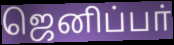
ஜெனிப்பர்